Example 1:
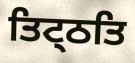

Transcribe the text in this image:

ਤਿਟ੍ਠਤਿ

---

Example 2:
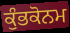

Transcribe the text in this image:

ਕੁੰਭਕੋਨਮ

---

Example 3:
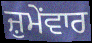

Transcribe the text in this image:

ਜ਼ੁਮੇਂਵਾਰ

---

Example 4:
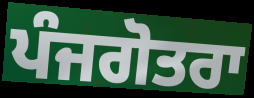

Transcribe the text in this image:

ਪੰਜਗੋਤਰਾ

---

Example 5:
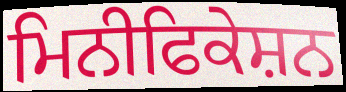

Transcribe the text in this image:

ਮਿਨੀਫਿਕੇਸ਼ਨ